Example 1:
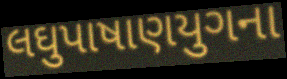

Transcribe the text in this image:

લઘુપાષાણયુગના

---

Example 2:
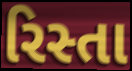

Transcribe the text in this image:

રિસ્તા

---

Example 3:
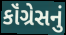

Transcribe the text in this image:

કૉંગ્રેસનું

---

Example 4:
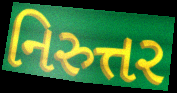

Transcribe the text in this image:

નિરુત્તર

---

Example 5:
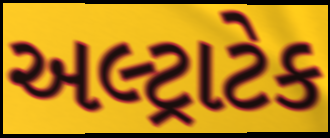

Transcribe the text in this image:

અલ્ટ્રાટેક